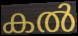
കൽ